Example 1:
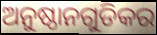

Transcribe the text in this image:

ଅନୁଷ୍ଠାନଗୁଡିକର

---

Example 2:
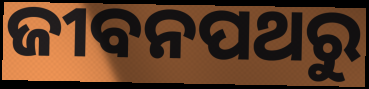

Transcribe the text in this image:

ଜୀବନପଥରୁ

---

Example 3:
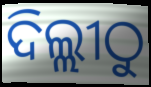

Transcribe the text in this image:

ଦିଲ୍ଲୀଠୁ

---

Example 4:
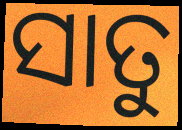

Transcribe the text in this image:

ସାତୁ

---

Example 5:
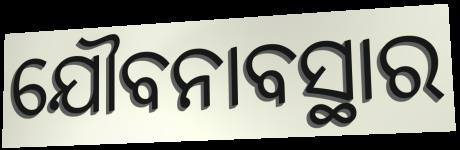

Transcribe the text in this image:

ଯୌବନାବସ୍ଥାର